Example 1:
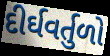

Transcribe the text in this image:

દીર્ઘવર્તુળો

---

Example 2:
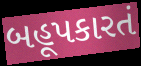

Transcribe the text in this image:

બહૂપકારતં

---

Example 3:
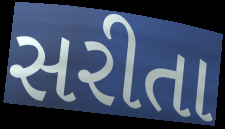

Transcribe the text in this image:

સરીતા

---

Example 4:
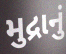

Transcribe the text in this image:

મુદ્રાનું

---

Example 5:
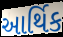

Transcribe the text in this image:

આર્થિક